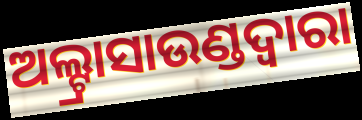
ଅଲ୍ଟ୍ରାସାଉଣ୍ଡଦ୍ୱାରା